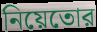
নিয়েতোর